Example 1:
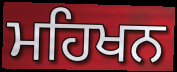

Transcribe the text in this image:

ਮਹਿਖਨ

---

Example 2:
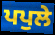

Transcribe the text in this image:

ਪਪੁਲੇ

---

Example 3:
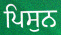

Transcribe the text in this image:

ਪਿਸੁਨ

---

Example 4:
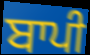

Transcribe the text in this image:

ਬਾਪੀ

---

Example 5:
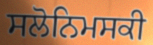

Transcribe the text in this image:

ਸਲੋਨਿਮਸਕੀ